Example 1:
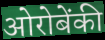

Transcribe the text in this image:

ओरोबेंकी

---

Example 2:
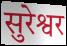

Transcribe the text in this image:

सुरेश्वर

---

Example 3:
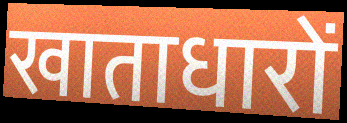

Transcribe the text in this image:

खाताधारों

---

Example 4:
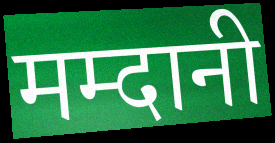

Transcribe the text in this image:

मम्दानी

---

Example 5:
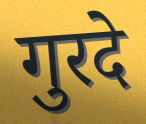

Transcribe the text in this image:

गुरदे